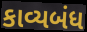
કાવ્યબંધ